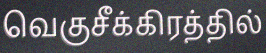
வெகுசீக்கிரத்தில்